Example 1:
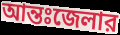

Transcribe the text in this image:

আন্তঃজেলার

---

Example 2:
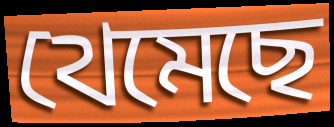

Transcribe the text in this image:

থেমেছে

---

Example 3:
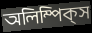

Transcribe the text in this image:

অলিম্পিক্‌স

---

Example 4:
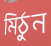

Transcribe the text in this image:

মিঠুন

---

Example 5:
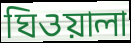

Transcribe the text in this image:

ঘিওয়ালা